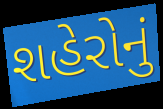
શહેરોનું